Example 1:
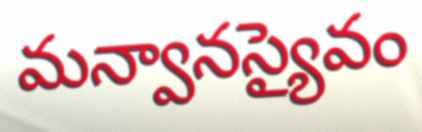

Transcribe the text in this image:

మన్వానస్యైవం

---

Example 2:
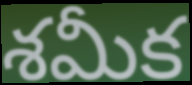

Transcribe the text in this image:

శమీక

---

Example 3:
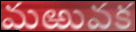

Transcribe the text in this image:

మఱువక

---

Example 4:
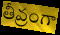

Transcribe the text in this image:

తీవ్రంగా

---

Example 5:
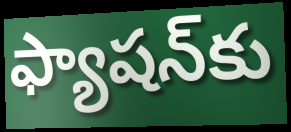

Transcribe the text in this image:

ఫ్యాషన్‌కు